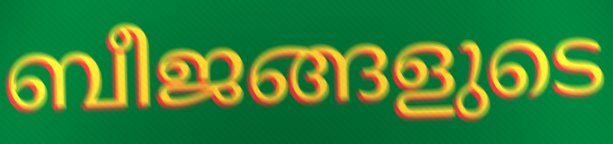
ബീജങ്ങളുടെ